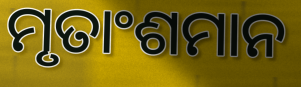
ମୃତାଂଶମାନ